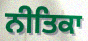
ਨੀਤਿਕਾ